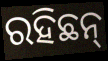
ରହିଛନ୍